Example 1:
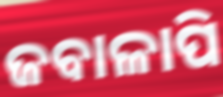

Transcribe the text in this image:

ଜବାଳାପି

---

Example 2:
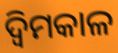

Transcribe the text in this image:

ଦ୍ବିମକାଳ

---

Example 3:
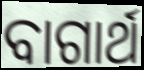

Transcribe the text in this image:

ବାଗାର୍ଥ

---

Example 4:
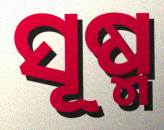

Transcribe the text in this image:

ସୂଷ୍ମ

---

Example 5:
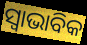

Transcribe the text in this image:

ସ୍ୱାଭାବିକ